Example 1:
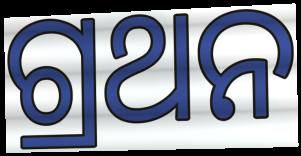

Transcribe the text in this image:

ଗ୍ରଥନ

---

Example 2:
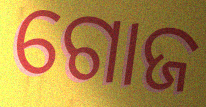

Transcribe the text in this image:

ଗୋଜ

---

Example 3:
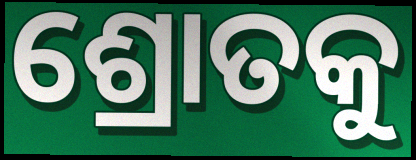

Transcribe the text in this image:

ଶ୍ରୋତକୁ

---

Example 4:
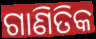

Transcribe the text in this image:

ଗାଣିତିକ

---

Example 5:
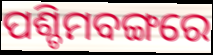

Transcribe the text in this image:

ପଶ୍ଚିମବଙ୍ଗରେ